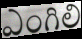
ఎంగిలి